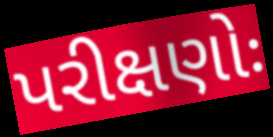
પરીક્ષણોઃ